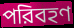
পরিবহণ